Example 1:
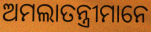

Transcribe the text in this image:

ଅମଲାତନ୍ତ୍ରୀମାନେ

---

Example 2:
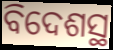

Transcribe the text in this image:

ବିଦେଶସ୍ଥ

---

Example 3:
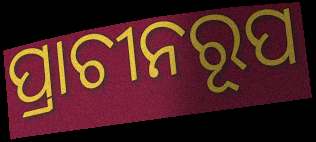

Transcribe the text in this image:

ପ୍ରାଚୀନରୂପ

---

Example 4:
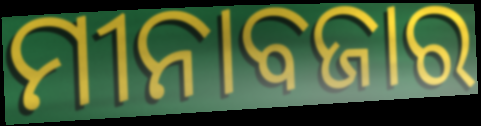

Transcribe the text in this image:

ମୀନାବଜାର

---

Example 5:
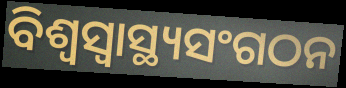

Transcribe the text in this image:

ବିଶ୍ଵସ୍ଵାସ୍ଥ୍ୟସଂଗଠନ